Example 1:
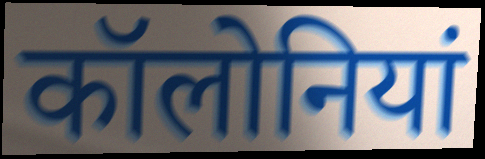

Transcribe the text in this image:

कॉलोनियां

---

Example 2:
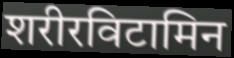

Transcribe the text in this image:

शरीरविटामिन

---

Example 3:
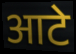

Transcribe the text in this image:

आटे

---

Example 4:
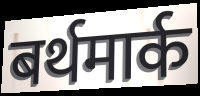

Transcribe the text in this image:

बर्थमार्क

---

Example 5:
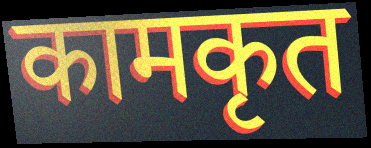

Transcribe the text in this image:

कामकृत